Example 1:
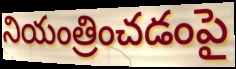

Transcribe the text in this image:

నియంత్రించడంపై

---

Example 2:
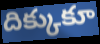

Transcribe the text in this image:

దిక్కుకూ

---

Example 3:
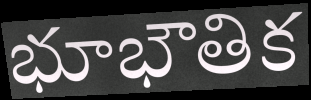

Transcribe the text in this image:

భూభౌతిక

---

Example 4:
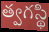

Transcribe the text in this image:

త్వగస్థి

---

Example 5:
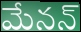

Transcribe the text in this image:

మేనన్